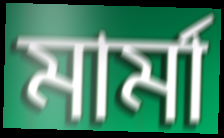
মার্মা